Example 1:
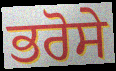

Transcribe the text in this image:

ਭਰੋਸੇ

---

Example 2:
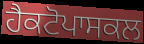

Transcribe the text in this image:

ਹੈਕਟੋਪਾਸਕਲ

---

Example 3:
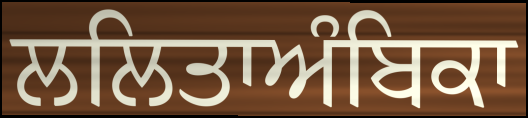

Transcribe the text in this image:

ਲਲਿਤਾਅੰਬਿਕਾ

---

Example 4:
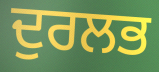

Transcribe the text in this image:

ਦੁਰਲਭ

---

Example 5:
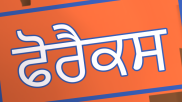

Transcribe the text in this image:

ਫੋਰੈਕਸ